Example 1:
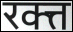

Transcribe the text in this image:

रक्त्त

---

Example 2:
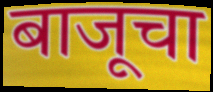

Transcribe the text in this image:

बाजूचा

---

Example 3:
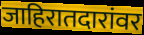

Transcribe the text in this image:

जाहिरातदारांवर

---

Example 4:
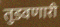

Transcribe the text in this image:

तुडवणारी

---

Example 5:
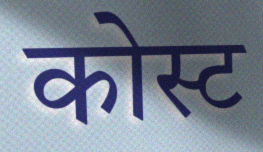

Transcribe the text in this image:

कोस्ट